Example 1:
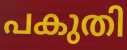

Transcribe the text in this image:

പകുതി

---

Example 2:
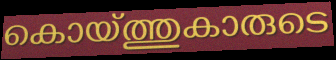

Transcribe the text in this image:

കൊയ്ത്തുകാരുടെ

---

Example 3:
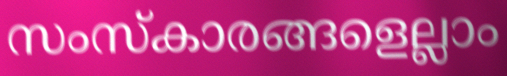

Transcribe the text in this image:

സംസ്കാരങ്ങളെല്ലാം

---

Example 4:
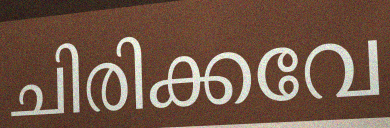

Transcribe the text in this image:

ചിരിക്കവേ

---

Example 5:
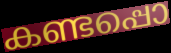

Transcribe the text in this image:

കണ്ടപ്പൊ